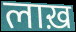
लाख़